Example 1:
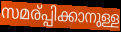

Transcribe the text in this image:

സമര്പ്പിക്കാനുള്ള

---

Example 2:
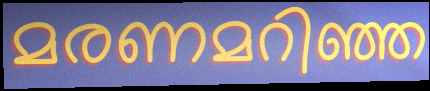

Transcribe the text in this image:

മരണമറിഞ്ഞ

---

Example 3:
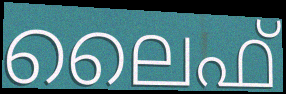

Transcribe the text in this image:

ലൈഫ്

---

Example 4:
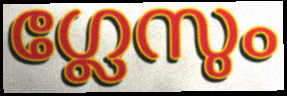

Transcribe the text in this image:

ഗ്ലേസും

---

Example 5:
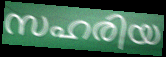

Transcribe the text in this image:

സഹരിയ